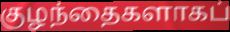
குழந்தைகளாகப்